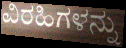
ವಿರಹಿಗಳನ್ನು